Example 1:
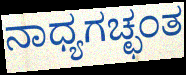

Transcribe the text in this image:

ನಾಧ್ಯಗಚ್ಛಂತ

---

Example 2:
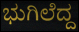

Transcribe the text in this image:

ಭುಗಿಲೆದ್ದ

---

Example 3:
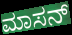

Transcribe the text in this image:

ಮಾಸನ್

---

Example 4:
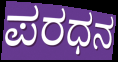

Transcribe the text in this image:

ಪರಧನ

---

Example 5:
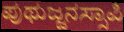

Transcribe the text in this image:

ಪುಥುಜ್ಜನಸ್ಸಾಪಿ